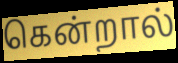
கென்றால்